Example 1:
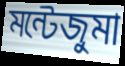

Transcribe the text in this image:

মন্টেজুমা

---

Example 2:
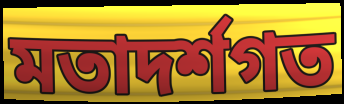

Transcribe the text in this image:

মতাদর্শগত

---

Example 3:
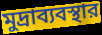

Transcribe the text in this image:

মুদ্রাব্যবস্থার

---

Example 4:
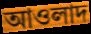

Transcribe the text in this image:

আওলাদ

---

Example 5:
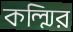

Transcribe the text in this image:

কল্মির